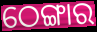
ଠେଙ୍ଗାର